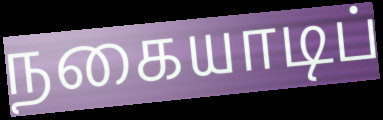
நகையாடிப்